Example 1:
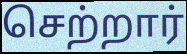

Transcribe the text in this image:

செற்றார்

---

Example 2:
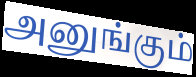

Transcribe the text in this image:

அனுங்கும்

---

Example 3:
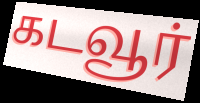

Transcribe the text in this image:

கடவூர்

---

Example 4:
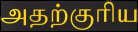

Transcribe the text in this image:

அதற்குரிய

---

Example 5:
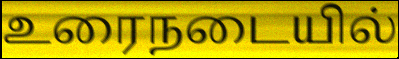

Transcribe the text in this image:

உரைநடையில்